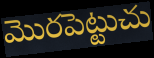
మొరపెట్టుచు